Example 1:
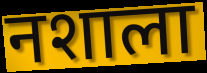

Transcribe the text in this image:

नशाला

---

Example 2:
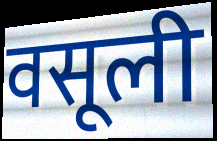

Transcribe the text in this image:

वसूली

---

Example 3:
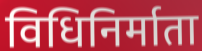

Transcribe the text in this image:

विधिनिर्माता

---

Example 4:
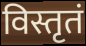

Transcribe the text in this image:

विस्तृतं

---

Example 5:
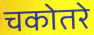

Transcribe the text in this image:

चकोतरे